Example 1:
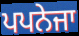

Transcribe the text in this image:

ਪਪਨੇਜਾ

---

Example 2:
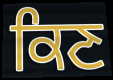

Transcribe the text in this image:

ਕਿਣ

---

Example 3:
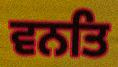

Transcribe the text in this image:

ਵਨਤਿ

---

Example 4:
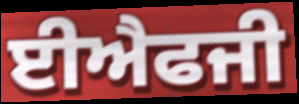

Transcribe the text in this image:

ਈਐਫਜੀ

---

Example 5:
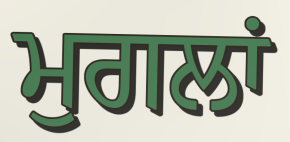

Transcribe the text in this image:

ਮੁਗਲਾਂ